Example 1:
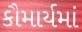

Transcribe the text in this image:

કૌમાર્યમાં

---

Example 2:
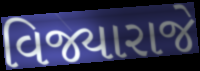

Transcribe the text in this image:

વિજ્યારાજે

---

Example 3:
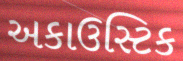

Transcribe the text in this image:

અકાઉસ્ટિક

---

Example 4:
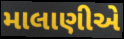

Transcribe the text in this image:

માલાણીએ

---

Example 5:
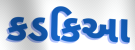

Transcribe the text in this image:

કડકિઆ